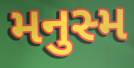
મનુસ્મ